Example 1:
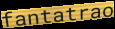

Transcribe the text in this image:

fantatrao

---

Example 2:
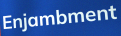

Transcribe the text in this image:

Enjambment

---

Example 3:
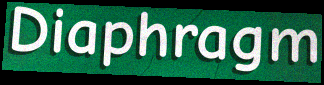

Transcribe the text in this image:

Diaphragm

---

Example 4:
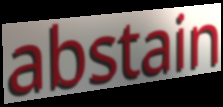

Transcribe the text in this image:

abstain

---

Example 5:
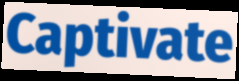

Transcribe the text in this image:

Captivate